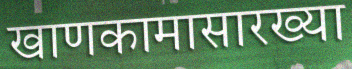
खाणकामासारख्या